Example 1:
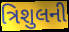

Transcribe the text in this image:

ત્રિશુલની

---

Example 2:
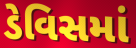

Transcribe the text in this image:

ડેવિસમાં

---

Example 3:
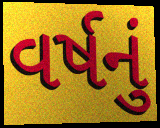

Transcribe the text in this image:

વર્ષનું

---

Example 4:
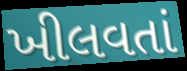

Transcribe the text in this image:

ખીલવતાં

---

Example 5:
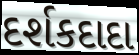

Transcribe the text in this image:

દર્શકદાદા